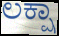
ಲಕ್ಷಾ